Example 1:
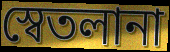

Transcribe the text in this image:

স্বেতলানা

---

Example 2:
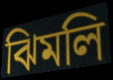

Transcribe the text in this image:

ঝিমলি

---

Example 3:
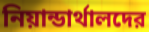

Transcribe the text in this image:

নিয়ান্ডার্থালদের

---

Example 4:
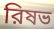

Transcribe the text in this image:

রিষভ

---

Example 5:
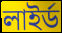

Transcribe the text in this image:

লাইর্ড